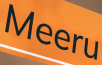
Meeru